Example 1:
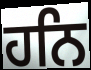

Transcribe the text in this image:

ਹਨਿ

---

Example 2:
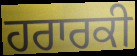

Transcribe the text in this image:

ਹਰਾਰਕੀ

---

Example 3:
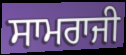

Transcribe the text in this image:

ਸਾਮਰਾਜੀ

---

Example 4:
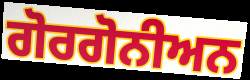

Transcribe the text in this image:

ਗੋਰਗੋਨੀਅਨ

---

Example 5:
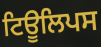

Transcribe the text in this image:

ਟਿਊਲਿਪਸ